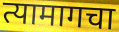
त्यामागचा